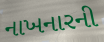
નાખનારની